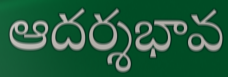
ఆదర్శభావ